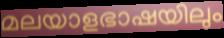
മലയാളഭാഷയിലും